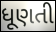
ધૂણતી